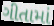
ગીતામાં